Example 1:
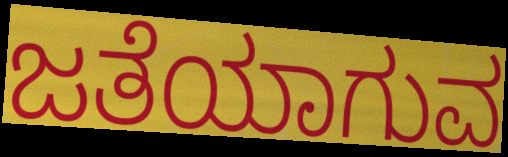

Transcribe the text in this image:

ಜತೆಯಾಗುವ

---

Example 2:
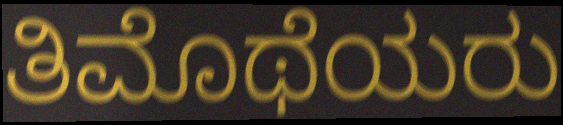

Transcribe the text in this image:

ತಿಮೊಥೆಯರು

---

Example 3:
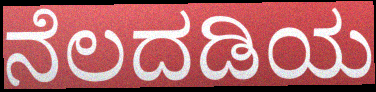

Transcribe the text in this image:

ನೆಲದಡಿಯ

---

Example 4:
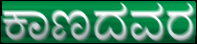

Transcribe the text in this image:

ಕಾಣದವರ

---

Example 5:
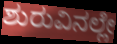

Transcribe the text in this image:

ಶುರುವಿನಲ್ಲೇ